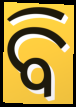
ବି